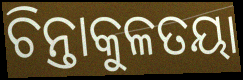
ଚିନ୍ତାକୁଳତୟା